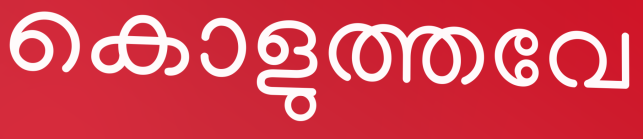
കൊളുത്തവേ